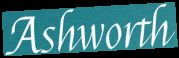
Ashworth